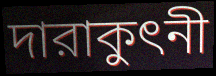
দারাকুৎনী